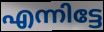
എന്നിട്ടേ